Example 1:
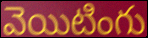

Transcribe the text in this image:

వెయిటింగు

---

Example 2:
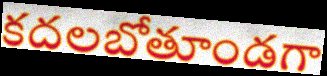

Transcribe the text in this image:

కదలబోతూండగా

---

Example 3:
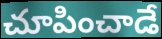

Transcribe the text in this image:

చూపించాడే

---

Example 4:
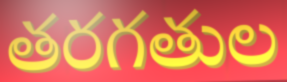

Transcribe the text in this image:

తరగతుల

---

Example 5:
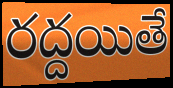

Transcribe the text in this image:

రద్దయితే